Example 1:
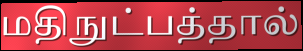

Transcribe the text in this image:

மதிநுட்பத்தால்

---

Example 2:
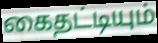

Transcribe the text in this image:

கைதட்டியும்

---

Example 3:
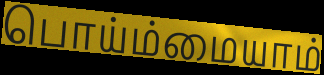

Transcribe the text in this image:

பொய்ம்மையாம்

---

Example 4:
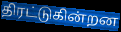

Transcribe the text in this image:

திரட்டுகின்றன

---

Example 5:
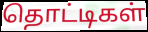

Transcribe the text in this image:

தொட்டிகள்